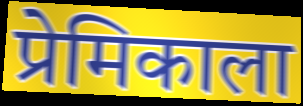
प्रेमिकाला